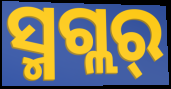
ସ୍ମଗ୍ଲର୍